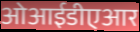
ओआईडीएआर